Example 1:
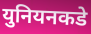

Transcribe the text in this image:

युनियनकडे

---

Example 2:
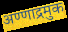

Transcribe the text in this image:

अण्णाद्रमुक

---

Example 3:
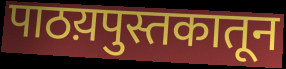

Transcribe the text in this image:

पाठय़पुस्तकातून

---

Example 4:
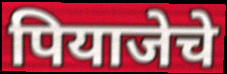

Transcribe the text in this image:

पियाजेचे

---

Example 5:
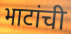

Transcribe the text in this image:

भाटांची